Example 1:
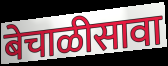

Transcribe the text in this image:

बेचाळीसावा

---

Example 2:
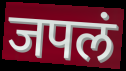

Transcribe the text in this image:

जपलं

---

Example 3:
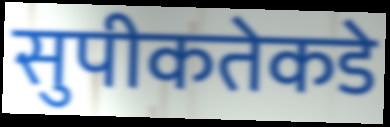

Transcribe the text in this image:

सुपीकतेकडे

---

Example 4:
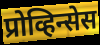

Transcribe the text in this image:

प्रोव्हिन्सेस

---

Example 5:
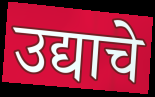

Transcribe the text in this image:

उद्याचे